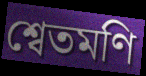
শ্বেতমণি